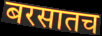
बरसातच